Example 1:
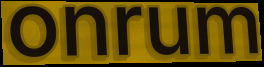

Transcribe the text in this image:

onrum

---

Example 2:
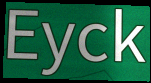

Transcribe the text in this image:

Eyck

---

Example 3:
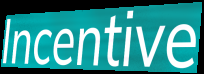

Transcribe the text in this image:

Incentive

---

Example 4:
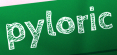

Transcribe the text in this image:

pyloric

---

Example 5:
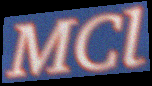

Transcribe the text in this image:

MCl